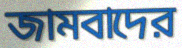
জামবাদের